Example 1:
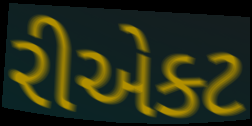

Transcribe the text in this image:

રીએક્ટ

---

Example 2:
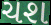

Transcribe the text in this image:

ચશ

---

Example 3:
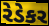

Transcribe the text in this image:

રેડેકર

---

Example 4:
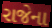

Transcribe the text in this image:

રાજેના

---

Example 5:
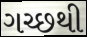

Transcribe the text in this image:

ગચ્છથી